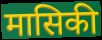
मासिकी